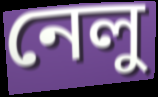
নেলু